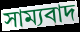
সাম্যবাদ